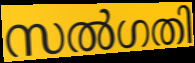
സൽഗതി